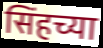
सिंहच्या